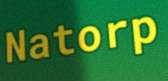
Natorp